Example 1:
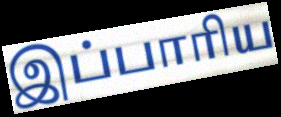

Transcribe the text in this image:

இப்பாரிய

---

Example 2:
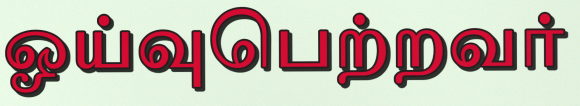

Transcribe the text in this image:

ஓய்வுபெற்றவர்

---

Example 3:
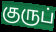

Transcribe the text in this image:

குருப்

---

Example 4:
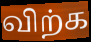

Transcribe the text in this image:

விற்க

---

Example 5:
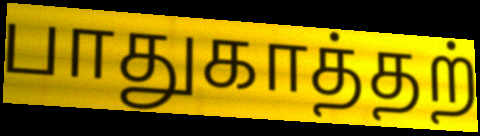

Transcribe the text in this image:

பாதுகாத்தற்